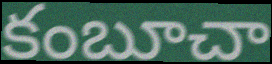
కంబూచా